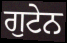
ਗੁਟੇਨ